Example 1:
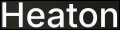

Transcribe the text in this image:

Heaton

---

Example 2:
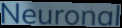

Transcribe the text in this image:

Neuronal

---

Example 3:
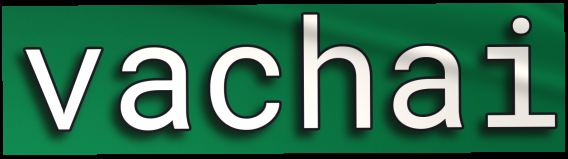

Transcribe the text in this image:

vachai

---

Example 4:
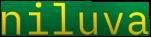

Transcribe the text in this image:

niluva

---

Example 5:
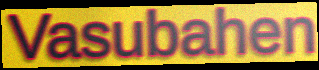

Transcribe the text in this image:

Vasubahen